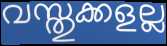
വസ്തുക്കളല്ല